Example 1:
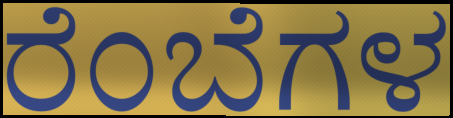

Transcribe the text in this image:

ರೆಂಬೆಗಳ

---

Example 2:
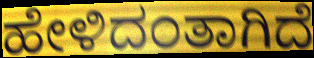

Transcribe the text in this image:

ಹೇಳಿದಂತಾಗಿದೆ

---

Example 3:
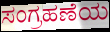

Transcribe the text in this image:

ಸಂಗ್ರಹಣೆಯ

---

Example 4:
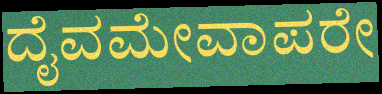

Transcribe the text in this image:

ದೈವಮೇವಾಪರೇ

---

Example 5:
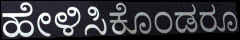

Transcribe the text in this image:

ಹೇಳಿಸಿಕೊಂಡರೂ